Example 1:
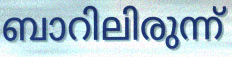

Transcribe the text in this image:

ബാറിലിരുന്ന്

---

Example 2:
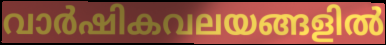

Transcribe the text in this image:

വാർഷികവലയങ്ങളിൽ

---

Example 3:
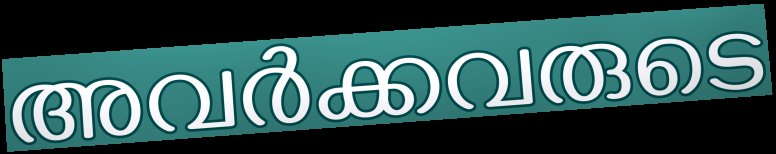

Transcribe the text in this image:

അവർക്കവരുടെ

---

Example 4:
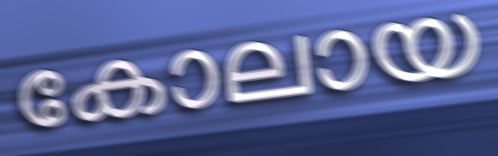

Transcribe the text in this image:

കോലായ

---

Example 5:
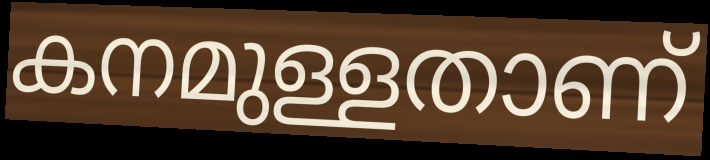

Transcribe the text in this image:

കനമുള്ളതാണ്